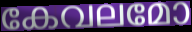
കേവലമോ